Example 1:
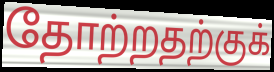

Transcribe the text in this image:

தோற்றதற்குக்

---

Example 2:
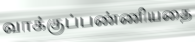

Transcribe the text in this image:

வாக்குப்பண்ணியதை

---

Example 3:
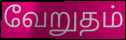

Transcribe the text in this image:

வேறுதம்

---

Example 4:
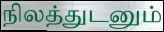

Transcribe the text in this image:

நிலத்துடனும்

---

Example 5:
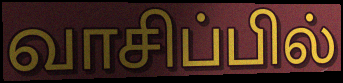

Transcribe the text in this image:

வாசிப்பில்